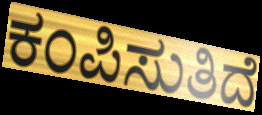
ಕಂಪಿಸುತಿದೆ